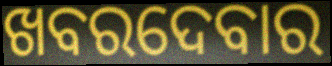
ଖବରଦେବାର